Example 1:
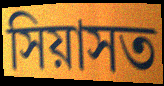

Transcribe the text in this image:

সিয়াসত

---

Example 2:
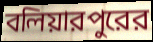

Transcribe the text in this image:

বলিয়ারপুরের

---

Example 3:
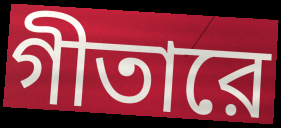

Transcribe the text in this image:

গীতারে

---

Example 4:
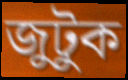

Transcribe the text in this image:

জুটুক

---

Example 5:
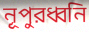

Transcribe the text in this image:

নূপুরধ্বনি